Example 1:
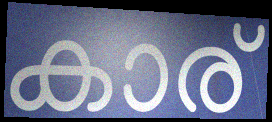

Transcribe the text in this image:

കാര്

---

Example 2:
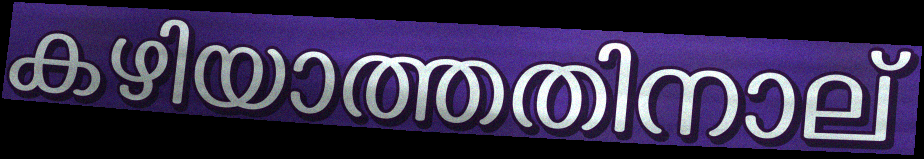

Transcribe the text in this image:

കഴിയാത്തതിനാല്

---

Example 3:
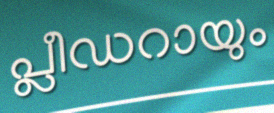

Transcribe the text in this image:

പ്ലീഡറായും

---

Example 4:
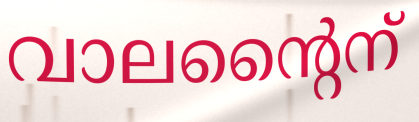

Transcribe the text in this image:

വാലന്റൈന്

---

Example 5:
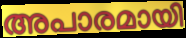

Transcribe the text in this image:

അപാരമായി